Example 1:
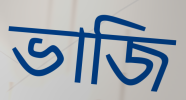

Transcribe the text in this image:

ভাজি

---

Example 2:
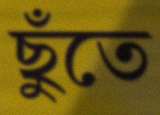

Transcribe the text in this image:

ছুঁতে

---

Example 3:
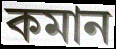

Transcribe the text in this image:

কমান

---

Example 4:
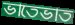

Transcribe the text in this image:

ভাতেভাত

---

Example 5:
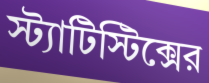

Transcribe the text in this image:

স্ট্যাটিস্টিক্সের